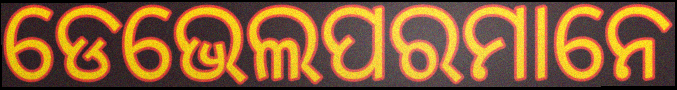
ଡେଭେଲପରମାନେ